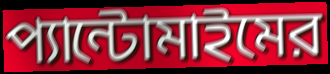
প্যান্টোমাইমের